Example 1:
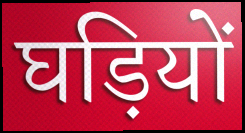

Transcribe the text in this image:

घड़ियों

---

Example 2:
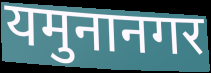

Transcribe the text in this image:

यमुनानगर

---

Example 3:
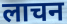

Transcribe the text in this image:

लाचन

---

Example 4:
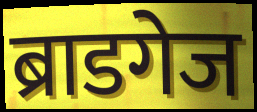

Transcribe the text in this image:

ब्राडगेज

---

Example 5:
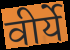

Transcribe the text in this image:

वीर्ये